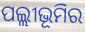
ପଲ୍ଲୀଭୂମିର